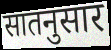
सातनुसार